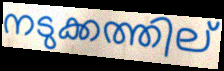
നടുക്കത്തില്